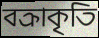
বক্রাকৃতি